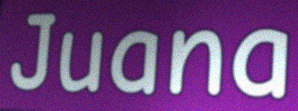
Juana